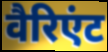
वैरिएंट